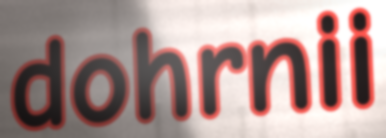
dohrnii